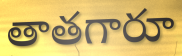
తాతగారూ